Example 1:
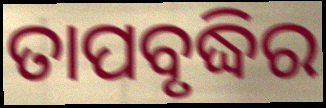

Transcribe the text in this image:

ତାପବୃଦ୍ଧିର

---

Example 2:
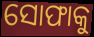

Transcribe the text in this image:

ସୋଫାକୁ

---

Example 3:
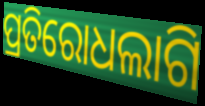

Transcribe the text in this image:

ପ୍ରତିରୋଧଲାଗି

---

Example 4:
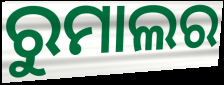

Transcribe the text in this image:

ରୁମାଲର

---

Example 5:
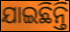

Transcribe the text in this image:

ଯାଇଛିନ୍ତି